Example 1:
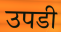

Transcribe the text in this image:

उपडी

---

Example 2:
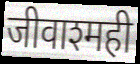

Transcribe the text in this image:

जीवाश्मही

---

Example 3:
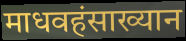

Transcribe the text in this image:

माधवहंसाख्यान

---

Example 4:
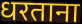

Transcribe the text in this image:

धरताना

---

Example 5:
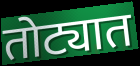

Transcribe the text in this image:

तोट्यात